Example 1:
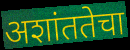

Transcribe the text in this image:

अशांततेचा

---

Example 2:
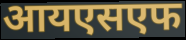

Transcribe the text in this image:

आयएसएफ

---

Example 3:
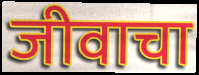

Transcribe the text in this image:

जीवाचा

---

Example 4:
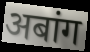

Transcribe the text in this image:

अबांग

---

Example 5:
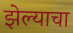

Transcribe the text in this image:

झेल्याचा